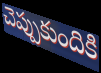
చెప్పుకుందికి